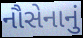
નૌસેનાનું